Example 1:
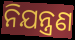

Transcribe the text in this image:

ନିଯନ୍ତ୍ରଣ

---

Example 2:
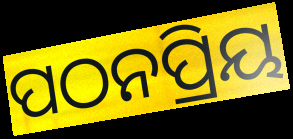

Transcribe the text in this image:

ପଠନପ୍ରିୟ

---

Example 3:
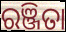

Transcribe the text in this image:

ରଞ୍ଜିତା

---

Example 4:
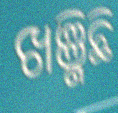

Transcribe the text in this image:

ଖଞ୍ଜିଛି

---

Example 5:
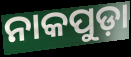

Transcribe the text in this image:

ନାକପୁଡ଼ା